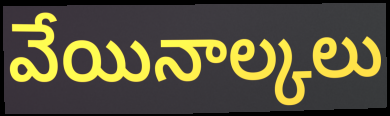
వేయినాల్కలు